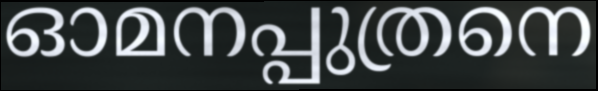
ഓമനപ്പുത്രനെ